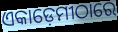
ଏକାଡ଼େମୀଠାରେ